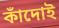
কাঁদোই